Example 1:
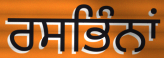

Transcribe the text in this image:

ਰਸਭਿੰਨਾਂ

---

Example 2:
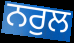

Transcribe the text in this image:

ਨਰੁਲ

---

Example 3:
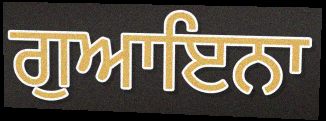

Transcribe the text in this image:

ਗੁਆਇਨਾ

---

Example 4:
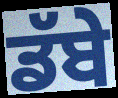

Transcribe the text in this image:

ਡੱਬੇ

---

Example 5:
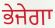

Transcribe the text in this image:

ਭੇਜੇਗਾ